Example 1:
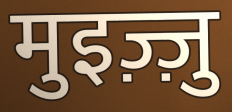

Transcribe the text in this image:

मुइज़्ज़ु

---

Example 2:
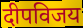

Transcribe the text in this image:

दीपविजय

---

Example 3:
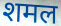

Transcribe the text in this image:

शमल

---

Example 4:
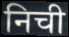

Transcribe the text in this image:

निची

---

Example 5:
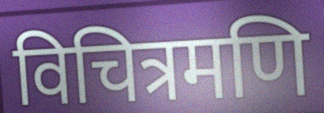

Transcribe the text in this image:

विचित्रमणि